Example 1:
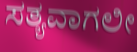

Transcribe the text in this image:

ಸತ್ಯವಾಗಲೀ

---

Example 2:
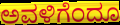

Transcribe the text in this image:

ಅವಳಿಗೆಂದೂ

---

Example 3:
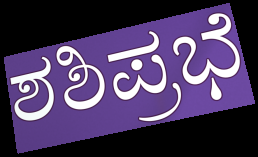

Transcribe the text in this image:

ಶಶಿಪ್ರಭೆ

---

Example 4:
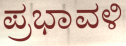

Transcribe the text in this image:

ಪ್ರಭಾವಳಿ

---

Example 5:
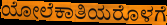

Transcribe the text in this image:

ಯೋಲೆಕಾತಿಯರೊಳಗೆ